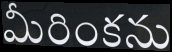
మీరింకను